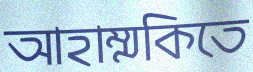
আহাম্মকিতে